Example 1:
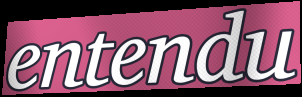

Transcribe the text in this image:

entendu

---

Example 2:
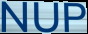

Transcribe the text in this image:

NUP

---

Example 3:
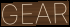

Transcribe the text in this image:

GEAR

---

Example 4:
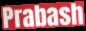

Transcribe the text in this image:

Prabash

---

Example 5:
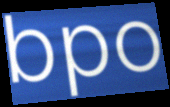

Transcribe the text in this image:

bpo